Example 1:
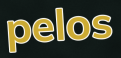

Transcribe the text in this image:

pelos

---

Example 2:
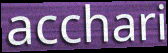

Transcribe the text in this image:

acchari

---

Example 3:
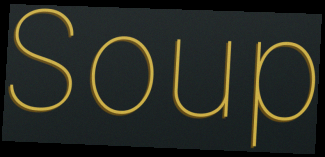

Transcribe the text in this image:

Soup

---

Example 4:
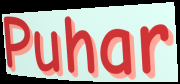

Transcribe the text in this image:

Puhar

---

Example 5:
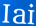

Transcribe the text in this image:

Iai